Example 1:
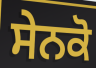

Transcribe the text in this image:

ਸੇਨਕੋ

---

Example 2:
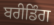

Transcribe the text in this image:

ਬਰੀਡਿੰਗ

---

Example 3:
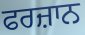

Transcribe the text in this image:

ਫਰਜ਼ਾਨ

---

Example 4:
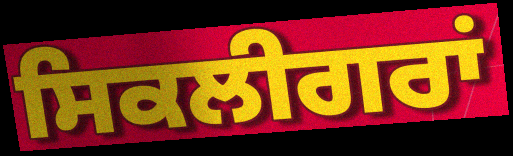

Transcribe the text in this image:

ਸਿਕਲੀਗਰਾਂ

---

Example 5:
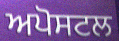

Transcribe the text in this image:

ਅਪੋਸਟਲ